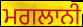
ਮਗਲਾਨੀ